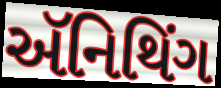
ઍનિથિંગ